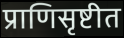
प्राणिसृष्टीत